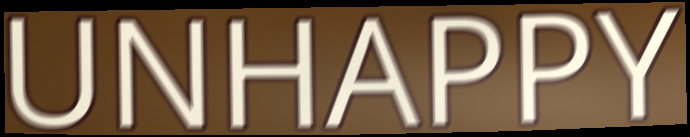
UNHAPPY